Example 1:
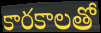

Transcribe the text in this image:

కారకాలతో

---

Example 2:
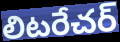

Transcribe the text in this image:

లిటరేచర్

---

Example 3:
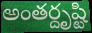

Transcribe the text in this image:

అంతర్దృష్టి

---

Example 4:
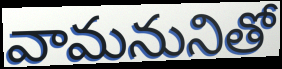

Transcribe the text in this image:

వామనునితో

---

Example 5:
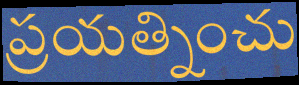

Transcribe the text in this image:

ప్రయత్నించు